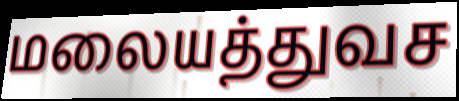
மலையத்துவச